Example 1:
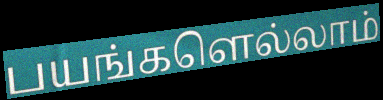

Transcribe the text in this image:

பயங்களெல்லாம்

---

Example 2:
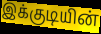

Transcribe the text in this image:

இக்குடியின்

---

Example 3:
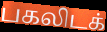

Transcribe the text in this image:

பகலிடக்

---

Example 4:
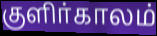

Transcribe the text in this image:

குளிர்காலம்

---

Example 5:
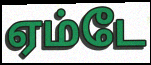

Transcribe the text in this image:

ஏம்டே